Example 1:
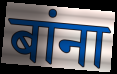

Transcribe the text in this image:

बांना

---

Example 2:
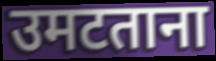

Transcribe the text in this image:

उमटताना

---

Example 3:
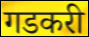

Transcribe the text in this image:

गडकरी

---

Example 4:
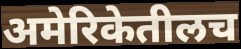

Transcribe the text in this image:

अमेरिकेतीलच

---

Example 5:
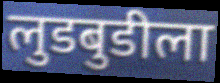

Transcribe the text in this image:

लुडबुडीला